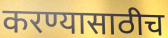
करण्यासाठीच